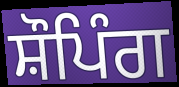
ਸ਼ੌਪਿੰਗ